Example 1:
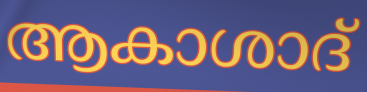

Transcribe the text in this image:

ആകാശാദ്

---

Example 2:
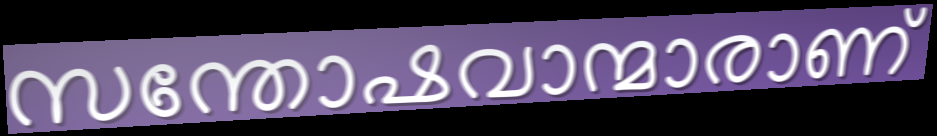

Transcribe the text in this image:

സന്തോഷവാന്മാരാണ്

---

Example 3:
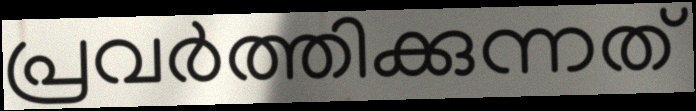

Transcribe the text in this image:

പ്രവർത്തിക്കുന്നത്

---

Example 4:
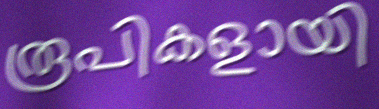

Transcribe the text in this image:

രൂപികളായി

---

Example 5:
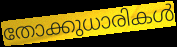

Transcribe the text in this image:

തോക്കുധാരികൾ